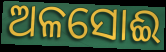
ଅଳସୋଈ